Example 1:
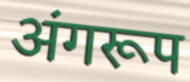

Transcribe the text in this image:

अंगरूप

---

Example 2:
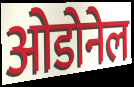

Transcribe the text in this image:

ओडोनेल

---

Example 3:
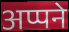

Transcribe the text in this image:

अप्पने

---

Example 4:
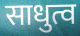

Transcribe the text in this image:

साधुत्व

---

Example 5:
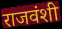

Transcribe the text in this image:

राजवंशी